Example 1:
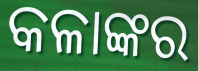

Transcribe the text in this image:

କଳାଙ୍କର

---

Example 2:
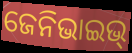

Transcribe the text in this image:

ଜେନିଭାଇଭ୍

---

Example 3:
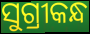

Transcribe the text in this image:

ସୁଗ୍ରୀକନ୍ଧ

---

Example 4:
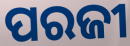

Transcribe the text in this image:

ପରଜୀ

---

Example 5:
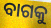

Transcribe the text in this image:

ବାଗକୁ